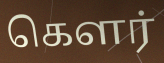
கௌர்